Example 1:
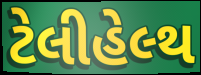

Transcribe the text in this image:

ટેલીહેલ્થ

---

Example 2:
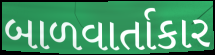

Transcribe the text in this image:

બાળવાર્તાકાર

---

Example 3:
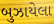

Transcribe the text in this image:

બુઝાયેલા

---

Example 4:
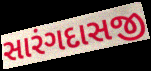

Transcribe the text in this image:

સારંગદાસજી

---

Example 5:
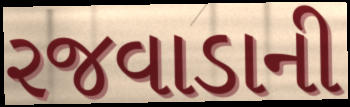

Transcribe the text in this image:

રજવાડાની